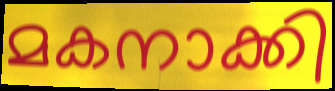
മകനാക്കി